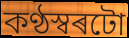
কণ্ঠস্বৰটো